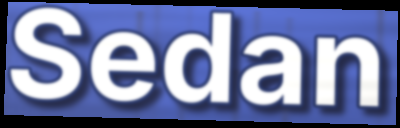
Sedan